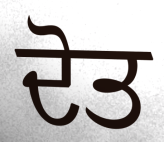
ਦੋਤ